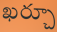
ఖర్చూ